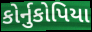
કોર્નુકોપિયા